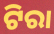
ଟିରା